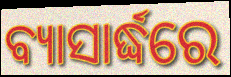
ବ୍ୟାସାର୍ଦ୍ଧରେ